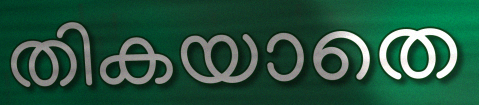
തികയാതെ